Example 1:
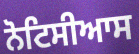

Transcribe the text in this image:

ਨੋਟਿਸੀਆਸ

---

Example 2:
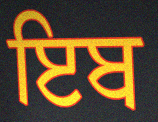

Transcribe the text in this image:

ਇਬ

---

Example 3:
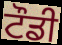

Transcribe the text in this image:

ਟੌਡੀ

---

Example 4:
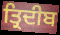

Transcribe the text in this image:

ਤ੍ਰਿਦੀਬ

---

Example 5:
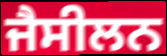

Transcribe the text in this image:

ਜੈਸੀਲਨ